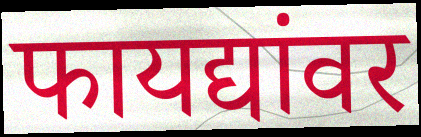
फायद्यांवर